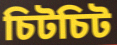
চিটচিট